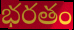
భరతం